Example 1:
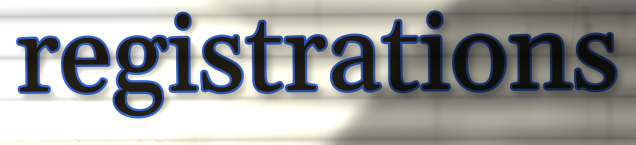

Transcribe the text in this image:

registrations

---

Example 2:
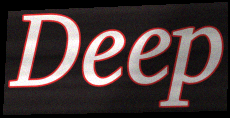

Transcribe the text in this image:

Deep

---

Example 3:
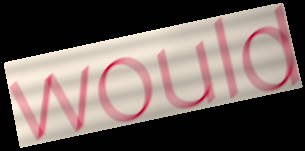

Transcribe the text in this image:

would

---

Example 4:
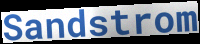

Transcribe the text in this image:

Sandstrom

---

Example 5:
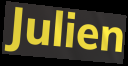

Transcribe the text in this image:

Julien